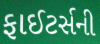
ફાઈટર્સની